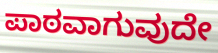
ಪಾಠವಾಗುವುದೇ